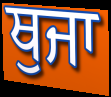
ਥੁਜਾ